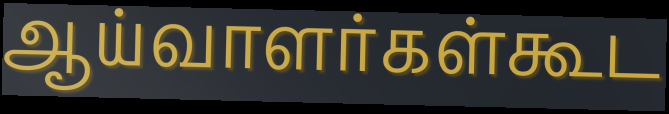
ஆய்வாளர்கள்கூட